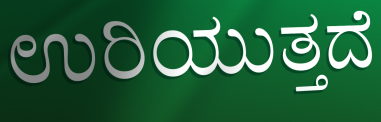
ಉರಿಯುತ್ತದೆ